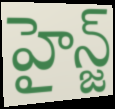
హైన్జ్